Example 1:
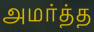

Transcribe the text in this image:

அமர்த்த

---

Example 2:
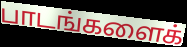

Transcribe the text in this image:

பாடங்களைக்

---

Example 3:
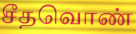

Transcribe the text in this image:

சீதவொண்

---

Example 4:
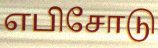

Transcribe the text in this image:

எபிசோடு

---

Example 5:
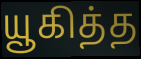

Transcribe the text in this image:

யூகித்த